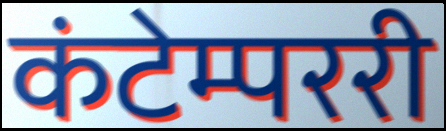
कंटेम्पररी